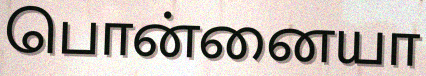
பொன்னையா